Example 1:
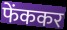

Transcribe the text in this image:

फेंककर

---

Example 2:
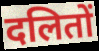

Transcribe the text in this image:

दलितों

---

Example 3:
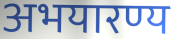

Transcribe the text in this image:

अभयारण्य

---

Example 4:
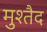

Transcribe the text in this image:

मुश्तैद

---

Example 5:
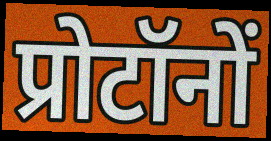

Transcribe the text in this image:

प्रोटॉनों